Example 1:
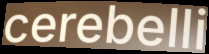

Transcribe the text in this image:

cerebelli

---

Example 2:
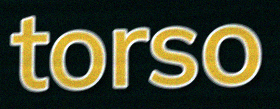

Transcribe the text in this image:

torso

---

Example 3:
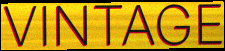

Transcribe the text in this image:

VINTAGE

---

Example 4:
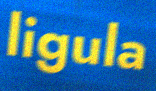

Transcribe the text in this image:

ligula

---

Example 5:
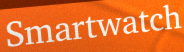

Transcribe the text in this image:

Smartwatch